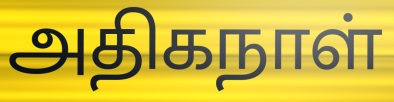
அதிகநாள்